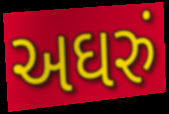
અઘરું